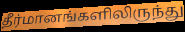
தீர்மானங்களிலிருந்து